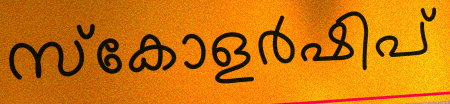
സ്കോളർഷിപ്